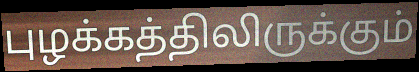
புழக்கத்திலிருக்கும்